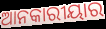
ଆନକାରୀୟାର